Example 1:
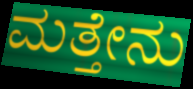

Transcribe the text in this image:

ಮತ್ತೇನು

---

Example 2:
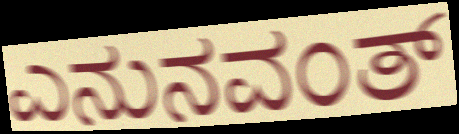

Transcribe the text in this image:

ಎನುನವಂತ್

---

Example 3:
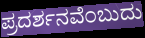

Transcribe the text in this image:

ಪ್ರದರ್ಶನವೆಂಬುದು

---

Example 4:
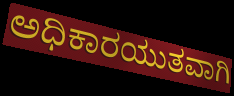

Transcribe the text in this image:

ಅಧಿಕಾರಯುತವಾಗಿ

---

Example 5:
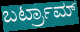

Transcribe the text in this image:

ಬರ್ಟ್ರಾಮ್